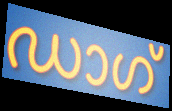
ഡാഗ്